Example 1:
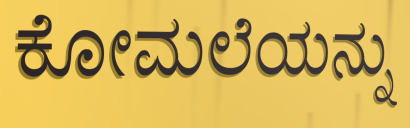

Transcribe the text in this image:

ಕೋಮಲೆಯನ್ನು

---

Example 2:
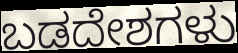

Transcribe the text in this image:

ಬಡದೇಶಗಳು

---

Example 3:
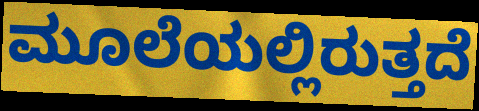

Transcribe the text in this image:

ಮೂಲೆಯಲ್ಲಿರುತ್ತದೆ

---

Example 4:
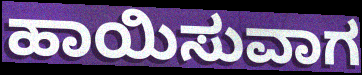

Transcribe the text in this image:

ಹಾಯಿಸುವಾಗ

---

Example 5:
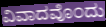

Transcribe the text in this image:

ವಿವಾದವೊಂದು